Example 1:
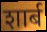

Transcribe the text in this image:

शार्ब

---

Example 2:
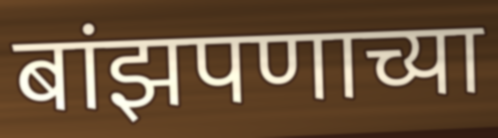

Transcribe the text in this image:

बांझपणाच्या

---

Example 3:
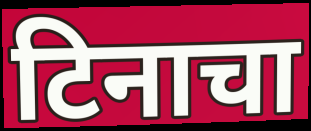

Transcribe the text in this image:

टिनाचा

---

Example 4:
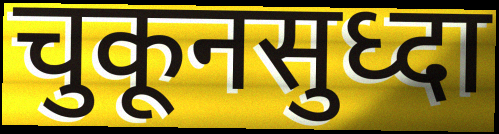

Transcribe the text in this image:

चुकूनसुध्दा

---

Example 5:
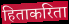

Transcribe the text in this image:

हिताकरिता